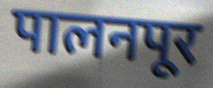
पालनपूर